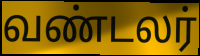
வண்டலர்